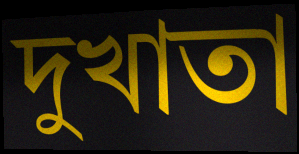
দুখাতা